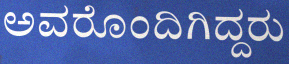
ಅವರೊಂದಿಗಿದ್ದರು